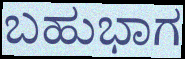
ಬಹುಭಾಗ